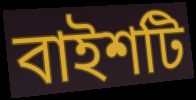
বাইশটি